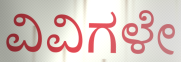
ವಿವಿಗಳೇ